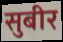
सुबीर